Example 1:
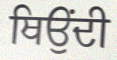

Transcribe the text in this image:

ਥਿਉਂਦੀ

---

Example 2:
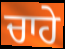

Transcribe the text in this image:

ਚਾਹੇ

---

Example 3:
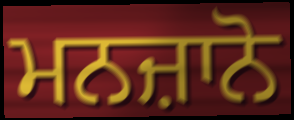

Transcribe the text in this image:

ਮਨਜ਼ਾਨੋ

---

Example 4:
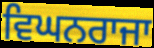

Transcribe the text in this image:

ਵਿਘਨਰਾਜਾ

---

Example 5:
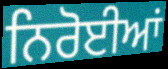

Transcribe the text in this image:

ਨਿਰੋਈਆਂ